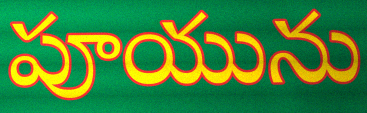
పూయును